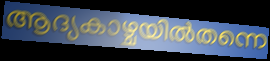
ആദ്യകാഴ്ചയിൽതന്നെ